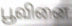
பூவினை